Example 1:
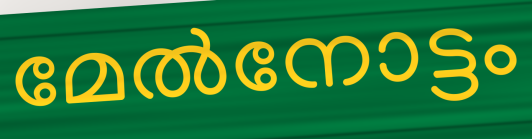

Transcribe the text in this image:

മേൽനോട്ടം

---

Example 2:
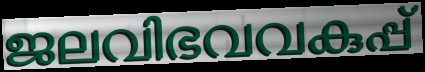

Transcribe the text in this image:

ജലവിഭവവകുപ്പ്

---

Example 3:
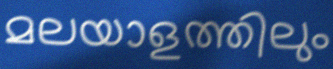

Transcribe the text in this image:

മലയാളത്തിലും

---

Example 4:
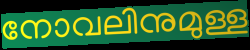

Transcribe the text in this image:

നോവലിനുമുള്ള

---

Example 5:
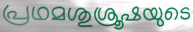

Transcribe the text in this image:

പ്രഥമശുശ്രൂഷയുടെ